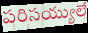
పరిసయ్యులే